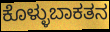
ಕೊಳ್ಳುಬಾಕತನ